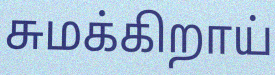
சுமக்கிறாய்